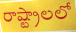
రాష్ట్రాలలో